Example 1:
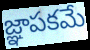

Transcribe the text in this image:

జ్ఞాపకమే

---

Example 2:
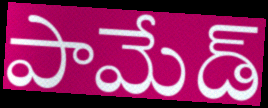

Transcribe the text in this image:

పామేడ్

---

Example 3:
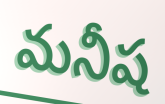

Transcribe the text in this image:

మనీష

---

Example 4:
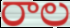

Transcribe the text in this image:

రాల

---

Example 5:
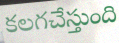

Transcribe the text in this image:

కలగచేస్తుంది